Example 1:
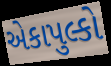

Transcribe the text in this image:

એકાપુલ્કો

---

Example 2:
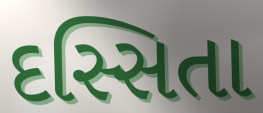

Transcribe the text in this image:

દસ્સિતા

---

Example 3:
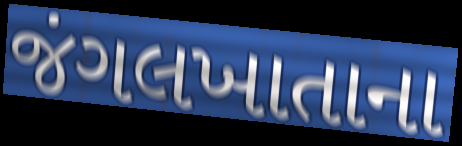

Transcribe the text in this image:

જંગલખાતાના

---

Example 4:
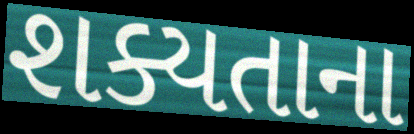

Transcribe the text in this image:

શક્યતાના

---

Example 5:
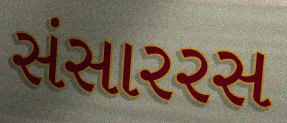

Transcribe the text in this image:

સંસારરસ